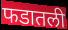
फडातली